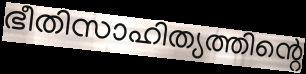
ഭീതിസാഹിത്യത്തിന്റെ